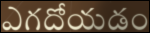
ఎగదోయడం